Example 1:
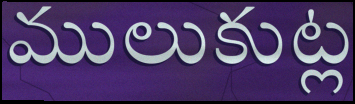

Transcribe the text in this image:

ములుకుట్ల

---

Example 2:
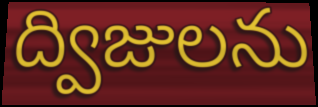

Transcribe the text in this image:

ద్విజులను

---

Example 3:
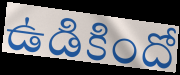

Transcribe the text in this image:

ఉడికిందో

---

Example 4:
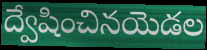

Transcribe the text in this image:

ద్వేషించినయెడల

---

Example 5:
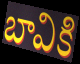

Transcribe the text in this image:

బావికి